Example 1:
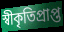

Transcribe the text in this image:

স্বীকৃতিপ্ৰাপ্ত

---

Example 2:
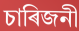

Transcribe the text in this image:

চাৰিজনী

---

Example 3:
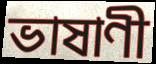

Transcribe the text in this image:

ভাষাণী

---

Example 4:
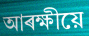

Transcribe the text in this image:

আৰক্ষীয়ে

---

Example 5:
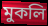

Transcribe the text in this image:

মুকলি